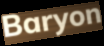
Baryon